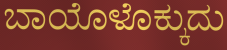
ಬಾಯೊಳೊಕ್ಕುದು